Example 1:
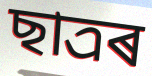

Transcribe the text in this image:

ছাত্ৰৰ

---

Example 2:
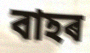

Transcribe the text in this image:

বাহৰ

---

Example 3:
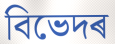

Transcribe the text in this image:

বিভেদৰ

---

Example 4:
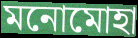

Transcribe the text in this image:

মনোমোহা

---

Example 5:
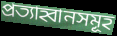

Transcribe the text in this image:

প্ৰত্যাহ্বানসমূহ